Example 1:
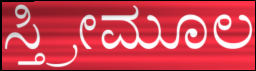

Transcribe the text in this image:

ಸ್ತ್ರೀಮೂಲ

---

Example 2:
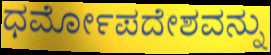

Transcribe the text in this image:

ಧರ್ಮೋಪದೇಶವನ್ನು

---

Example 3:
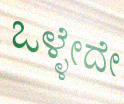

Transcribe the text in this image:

ಒಳ್ಳೇದೇ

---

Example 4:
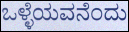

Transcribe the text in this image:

ಒಳ್ಳೆಯವನೆಂದು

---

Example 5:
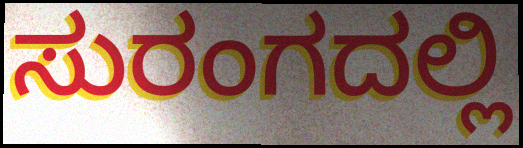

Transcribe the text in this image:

ಸುರಂಗದಲ್ಲಿ